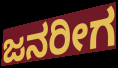
ಜನರೀಗ